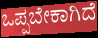
ಒಪ್ಪಬೇಕಾಗಿದೆ